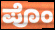
ಪೊಂ